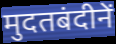
मुदतबंदीनें